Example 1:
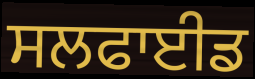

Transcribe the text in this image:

ਸਲਫਾਈਡ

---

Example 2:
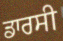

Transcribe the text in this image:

ਡਾਰਸੀ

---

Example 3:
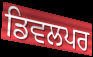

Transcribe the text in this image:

ਡਿਵਲਪਰ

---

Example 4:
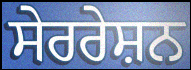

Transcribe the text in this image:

ਸੇਰਰੇਸ਼ਨ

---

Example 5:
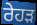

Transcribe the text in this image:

ਰੇਹੜ